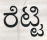
ರೆಟ್ಟಿ